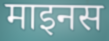
माइनस